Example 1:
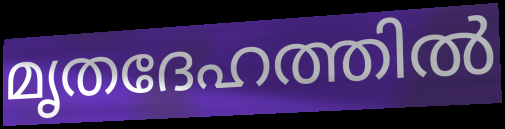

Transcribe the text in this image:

മൃതദേഹത്തിൽ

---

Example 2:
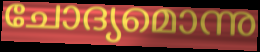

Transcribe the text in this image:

ചോദ്യമൊന്നു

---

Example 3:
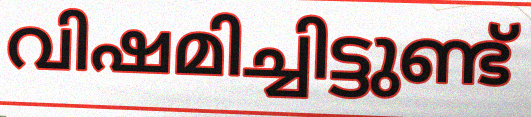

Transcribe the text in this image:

വിഷമിച്ചിട്ടുണ്ട്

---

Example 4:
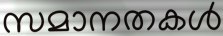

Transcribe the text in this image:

സമാനതകൾ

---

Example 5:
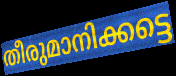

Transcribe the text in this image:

തീരുമാനിക്കട്ടെ